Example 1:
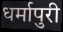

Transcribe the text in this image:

धर्मापुरी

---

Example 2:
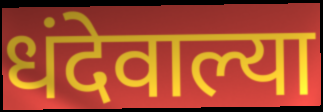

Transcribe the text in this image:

धंदेवाल्या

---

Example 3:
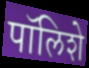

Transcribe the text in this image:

पॉलिशे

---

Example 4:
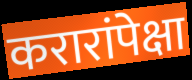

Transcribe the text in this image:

करारांपेक्षा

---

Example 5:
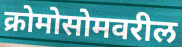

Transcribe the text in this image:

क्रोमोसोमवरील